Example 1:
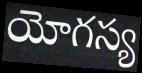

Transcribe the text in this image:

యోగస్య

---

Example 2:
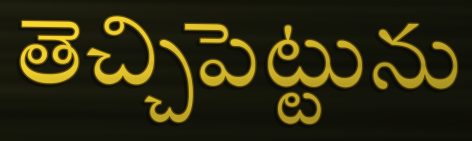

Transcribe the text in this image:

తెచ్చిపెట్టును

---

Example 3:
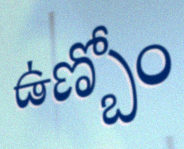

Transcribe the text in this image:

ఉణ్బోం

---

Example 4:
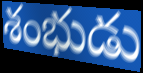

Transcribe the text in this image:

శంభుడు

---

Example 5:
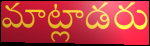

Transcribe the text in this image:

మాట్లాడరు